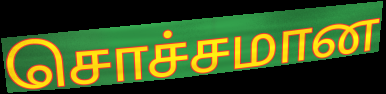
சொச்சமான